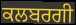
ਕਲਬਰਗੀ